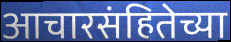
आचारसंहितेच्या